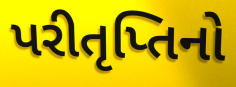
પરીતૃપ્તિનો